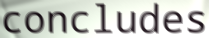
concludes